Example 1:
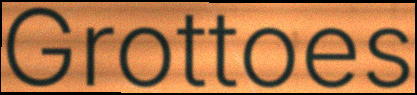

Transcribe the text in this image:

Grottoes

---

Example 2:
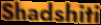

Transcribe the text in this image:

Shadshiti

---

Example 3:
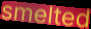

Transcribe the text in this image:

smelted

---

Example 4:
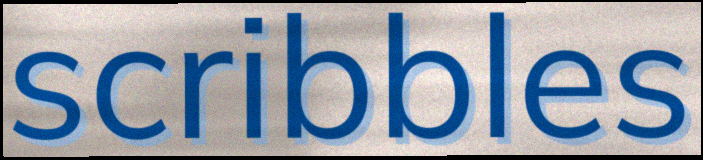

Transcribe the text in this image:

scribbles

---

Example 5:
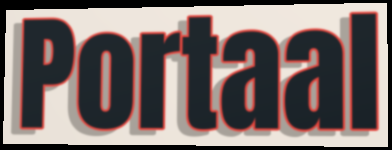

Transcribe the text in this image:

Portaal